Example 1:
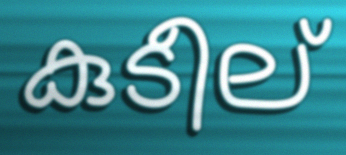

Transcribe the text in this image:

കുടീല്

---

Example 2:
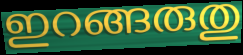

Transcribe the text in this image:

ഇറങ്ങരുതു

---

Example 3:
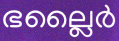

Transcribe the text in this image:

ഭല്ലൈർ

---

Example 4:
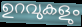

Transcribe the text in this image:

ഉറവുകളും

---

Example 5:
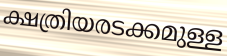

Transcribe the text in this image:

ക്ഷത്രിയരടക്കമുള്ള